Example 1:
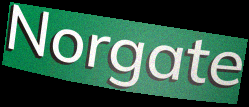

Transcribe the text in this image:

Norgate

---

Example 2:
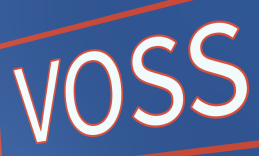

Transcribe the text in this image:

VOSS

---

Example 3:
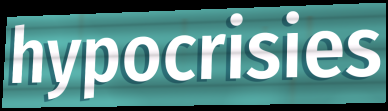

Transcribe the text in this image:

hypocrisies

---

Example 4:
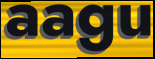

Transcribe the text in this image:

aagu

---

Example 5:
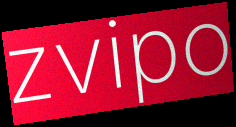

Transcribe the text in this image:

zvipo